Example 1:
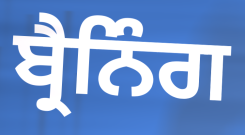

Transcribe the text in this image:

ਬ੍ਰੈਨਿੰਗ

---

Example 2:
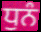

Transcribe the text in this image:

ਧੁਨੰ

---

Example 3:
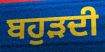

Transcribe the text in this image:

ਬਹੁੜਦੀ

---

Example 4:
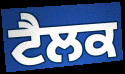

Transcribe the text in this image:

ਟੈਲਕ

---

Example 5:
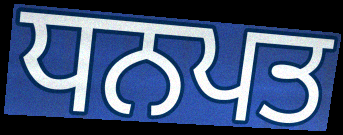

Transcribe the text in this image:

ਧਨਪਤ